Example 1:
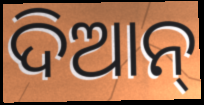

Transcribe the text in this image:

ଦିଆନ୍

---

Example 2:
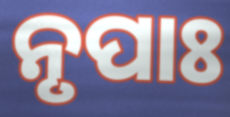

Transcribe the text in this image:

ନୃପାଃ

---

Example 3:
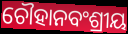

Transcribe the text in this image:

ଚୌହାନବଂଶ୍ରୀୟ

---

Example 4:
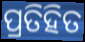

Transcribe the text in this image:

ପ୍ରତିହିତ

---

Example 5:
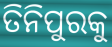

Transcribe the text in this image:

ତିନିପୁରକୁ